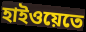
হাইওয়েতে